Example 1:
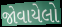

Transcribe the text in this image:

જોવાયેલો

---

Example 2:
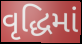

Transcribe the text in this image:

વૃદ્ધિમાં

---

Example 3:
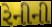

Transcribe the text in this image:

રેનીની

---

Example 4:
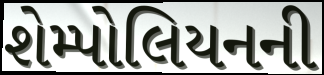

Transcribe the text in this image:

શેમ્પોલિયનની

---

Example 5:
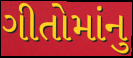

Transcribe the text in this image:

ગીતોમાંનુ